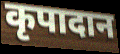
कृपादान